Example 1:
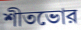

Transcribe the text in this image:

শীতভোর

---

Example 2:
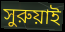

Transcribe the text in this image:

সুরুয়াই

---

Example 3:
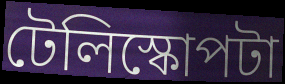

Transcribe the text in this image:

টেলিস্কোপটা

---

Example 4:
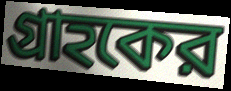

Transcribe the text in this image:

গ্রাহকের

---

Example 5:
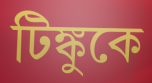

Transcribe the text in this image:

টিঙ্কুকে